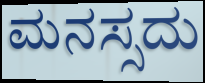
ಮನಸ್ಸದು